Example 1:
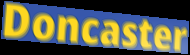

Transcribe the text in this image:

Doncaster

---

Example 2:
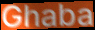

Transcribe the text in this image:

Ghaba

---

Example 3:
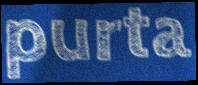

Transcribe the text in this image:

purta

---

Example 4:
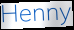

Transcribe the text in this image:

Henny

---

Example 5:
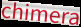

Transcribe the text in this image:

chimera